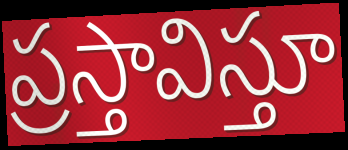
ప్రస్తావిస్తూ